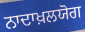
ਨਾਦਾਖ਼ਲਯੋਗ